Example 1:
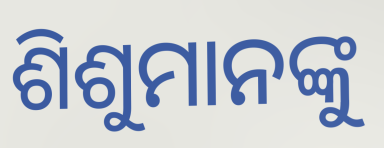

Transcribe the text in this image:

ଶିଶୁମାନଙ୍କୁ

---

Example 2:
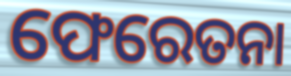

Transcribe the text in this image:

ଫେରେତନା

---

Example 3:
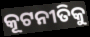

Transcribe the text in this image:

କୂଟନୀତିକୁ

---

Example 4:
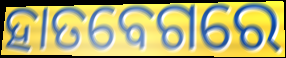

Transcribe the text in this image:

ହାତବେଗରେ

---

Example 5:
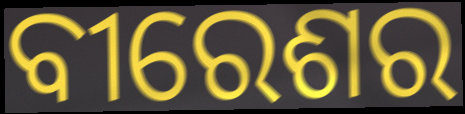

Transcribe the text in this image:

ବୀରେଶର